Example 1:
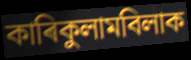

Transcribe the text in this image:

কাৰিকুলামবিলাক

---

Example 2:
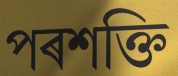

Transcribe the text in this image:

পৰশক্তি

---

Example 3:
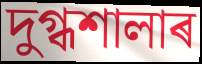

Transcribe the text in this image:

দুগ্ধশালাৰ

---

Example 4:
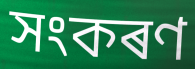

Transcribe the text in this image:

সংকৰণ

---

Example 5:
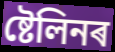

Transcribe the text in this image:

ষ্টেলিনৰ